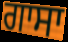
ਗਾਸਾ